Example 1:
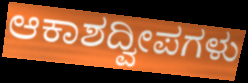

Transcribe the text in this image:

ಆಕಾಶದ್ವೀಪಗಳು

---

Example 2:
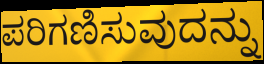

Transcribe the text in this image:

ಪರಿಗಣಿಸುವುದನ್ನು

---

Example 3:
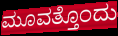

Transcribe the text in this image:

ಮೂವತ್ತೊಂದು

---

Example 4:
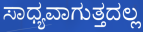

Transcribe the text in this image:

ಸಾಧ್ಯವಾಗುತ್ತದಲ್ಲ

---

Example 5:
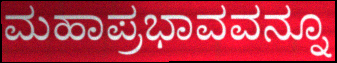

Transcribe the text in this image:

ಮಹಾಪ್ರಭಾವವನ್ನೂ